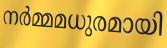
നർമ്മമധുരമായി